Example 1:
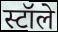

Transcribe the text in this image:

स्टॉले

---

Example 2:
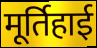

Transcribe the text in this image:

मूर्तिहाई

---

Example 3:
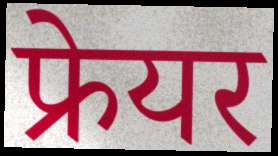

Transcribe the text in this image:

फ्रेयर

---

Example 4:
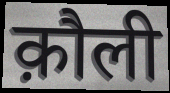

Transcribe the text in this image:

क़ौली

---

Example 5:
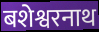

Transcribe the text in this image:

बशेश्वरनाथ